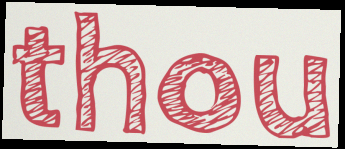
thou